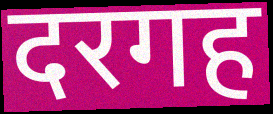
दरगह